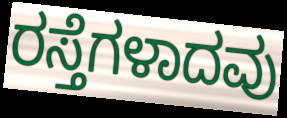
ರಸ್ತೆಗಳಾದವು